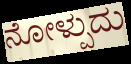
ನೋಳ್ಪುದು